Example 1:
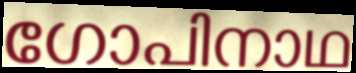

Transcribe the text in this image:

ഗോപിനാഥ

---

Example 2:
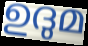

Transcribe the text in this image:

ഉദുമ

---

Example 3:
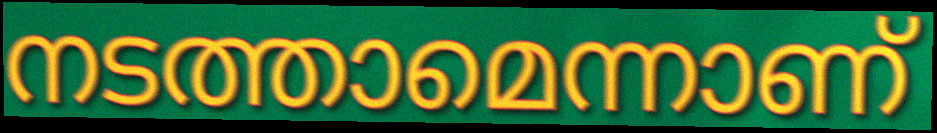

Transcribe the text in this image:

നടത്താമെന്നാണ്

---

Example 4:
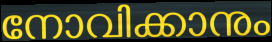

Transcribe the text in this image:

നോവിക്കാനും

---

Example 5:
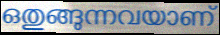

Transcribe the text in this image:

ഒതുങ്ങുന്നവയാണ്